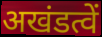
अखंडत्वें